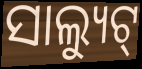
ସାଲ୍ୟୁଟ୍